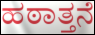
ಹಠಾತ್ತನೆ